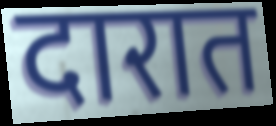
दारात